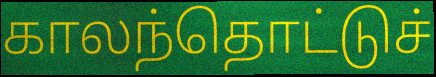
காலந்தொட்டுச்